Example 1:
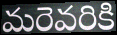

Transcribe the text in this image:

మరెవరికి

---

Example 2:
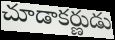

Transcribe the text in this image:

చూడాకర్ణుడు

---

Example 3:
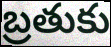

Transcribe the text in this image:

బ్రతుకు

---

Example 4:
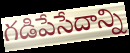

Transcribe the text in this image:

గడిపేసేదాన్ని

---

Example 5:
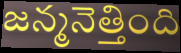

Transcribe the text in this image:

జన్మనెత్తింది